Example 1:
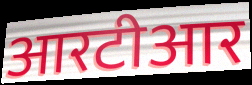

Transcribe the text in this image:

आरटीआर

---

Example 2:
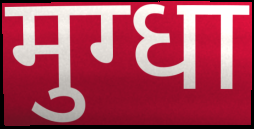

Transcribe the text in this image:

मुग्धा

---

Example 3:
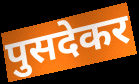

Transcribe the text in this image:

पुसदेकर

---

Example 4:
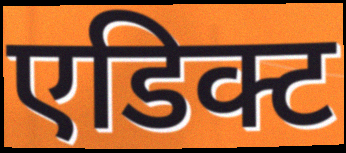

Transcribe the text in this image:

एडिक्ट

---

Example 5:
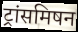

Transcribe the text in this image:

ट्रांसमिषन